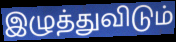
இழுத்துவிடும்